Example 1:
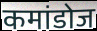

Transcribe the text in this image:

कमांडोज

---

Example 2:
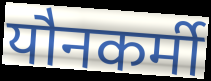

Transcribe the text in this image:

यौनकर्मी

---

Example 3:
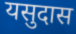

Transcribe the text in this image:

यसुदास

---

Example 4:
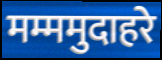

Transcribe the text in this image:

मम्ममुदाहरे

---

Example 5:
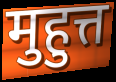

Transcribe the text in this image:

मुहुत्त